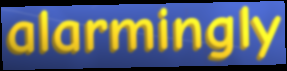
alarmingly